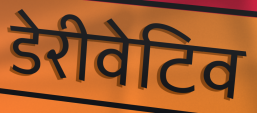
डेरीवेटिव